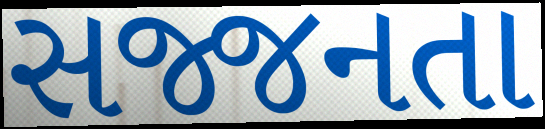
સજ્જનતા